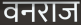
वनराज